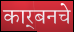
कार्बनचे